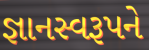
જ્ઞાનસ્વરૂપને